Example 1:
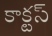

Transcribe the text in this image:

కాక్టస్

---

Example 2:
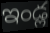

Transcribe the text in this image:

ఇండ్ల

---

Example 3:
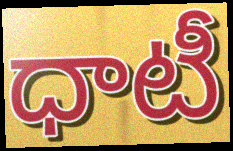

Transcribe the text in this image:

ధాటీ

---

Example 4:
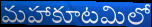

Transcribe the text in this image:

మహాకూటమిలో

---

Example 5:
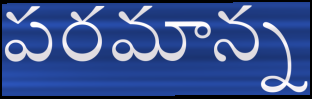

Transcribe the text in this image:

పరమాన్న